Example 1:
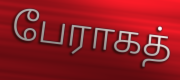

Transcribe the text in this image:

பேராகத்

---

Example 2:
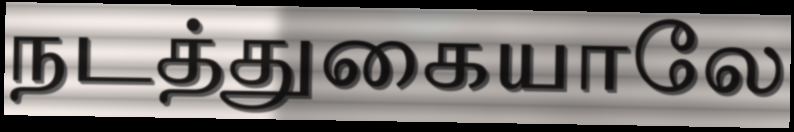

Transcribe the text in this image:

நடத்துகையாலே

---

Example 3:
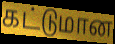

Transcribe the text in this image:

கட்டுமான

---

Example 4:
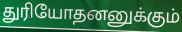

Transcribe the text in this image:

துரியோதனனுக்கும்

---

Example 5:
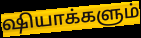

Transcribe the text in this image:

ஷியாக்களும்